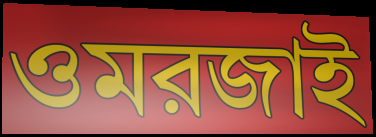
ওমরজাই